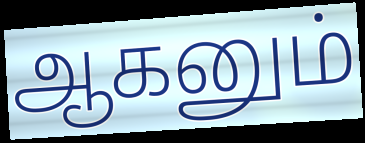
ஆகனும்